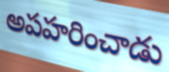
అపహరించాడు